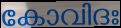
കോവിദഃ